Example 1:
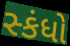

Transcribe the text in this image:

સ્કંધો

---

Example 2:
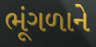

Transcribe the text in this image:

ભૂંગળાને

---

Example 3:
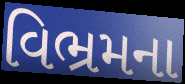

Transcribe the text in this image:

વિભ્રમના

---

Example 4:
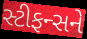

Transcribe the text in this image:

સ્ટીફન્સને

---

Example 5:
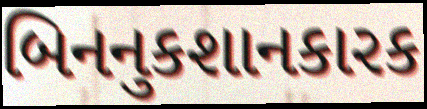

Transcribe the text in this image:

બિનનુકશાનકારક